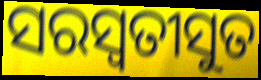
ସରସ୍ୱତୀସୁତ